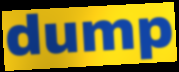
dump